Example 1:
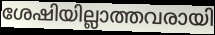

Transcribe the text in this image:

ശേഷിയില്ലാത്തവരായി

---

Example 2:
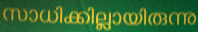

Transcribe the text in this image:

സാധിക്കില്ലായിരുന്നു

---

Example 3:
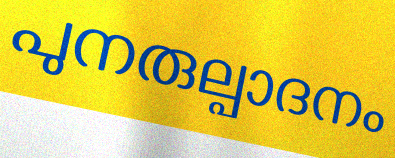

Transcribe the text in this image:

പുനരുല്പാദനം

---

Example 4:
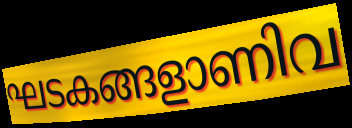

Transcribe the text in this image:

ഘടകങ്ങളാണിവ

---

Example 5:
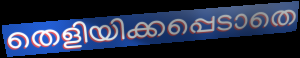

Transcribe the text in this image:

തെളിയിക്കപ്പെടാതെ